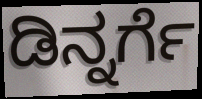
ಡಿನ್ನರ್ಗೆ